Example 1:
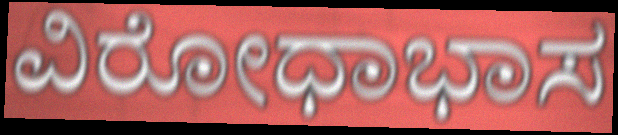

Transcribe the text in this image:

ವಿರೋಧಾಭಾಸ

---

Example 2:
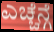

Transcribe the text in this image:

ಎಚ್ಚೆನ್ಗೆ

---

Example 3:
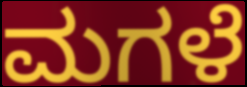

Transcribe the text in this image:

ಮಗಳೆ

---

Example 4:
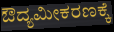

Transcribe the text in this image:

ಔದ್ಯಮೀಕರಣಕ್ಕೆ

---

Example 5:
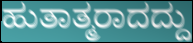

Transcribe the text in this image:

ಹುತಾತ್ಮರಾದದ್ದು